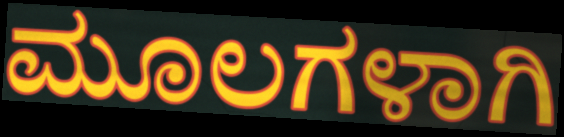
ಮೂಲಗಳಾಗಿ